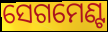
ସେଗମେଣ୍ଟ